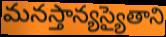
మనస్తాన్యస్యైతాని